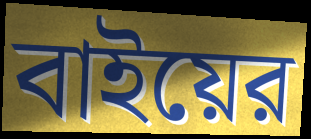
বাইয়ের